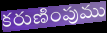
కరుణింపుము